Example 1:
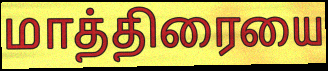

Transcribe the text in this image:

மாத்திரையை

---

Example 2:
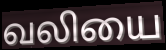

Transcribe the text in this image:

வலியை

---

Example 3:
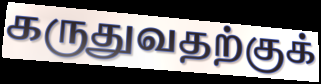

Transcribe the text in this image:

கருதுவதற்குக்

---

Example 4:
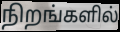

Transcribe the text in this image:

நிறங்களில்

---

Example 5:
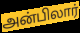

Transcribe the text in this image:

அன்பிலார்